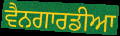
ਵੈਨਗਾਰਡੀਆ